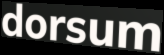
dorsum